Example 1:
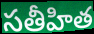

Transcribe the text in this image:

సతీహిత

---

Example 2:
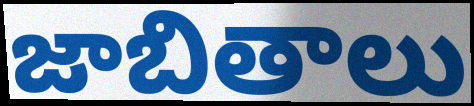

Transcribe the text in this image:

జాబితాలు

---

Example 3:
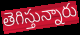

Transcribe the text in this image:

తెగిస్తున్నారు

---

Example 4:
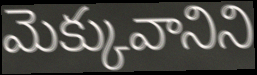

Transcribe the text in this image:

మెక్కువానిని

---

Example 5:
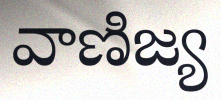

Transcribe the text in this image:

వాణిజ్య